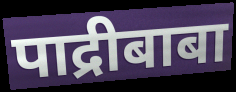
पाद्रीबाबा